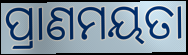
ପ୍ରାଣମୟତା